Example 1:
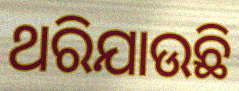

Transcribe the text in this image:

ଥରିଯାଉଛି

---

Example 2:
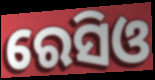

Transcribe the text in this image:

ରେସିଓ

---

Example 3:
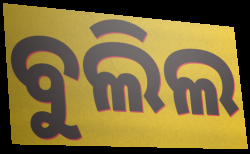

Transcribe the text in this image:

ବୁଲିଲ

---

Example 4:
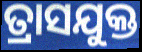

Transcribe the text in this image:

ତ୍ରାସଯୁକ୍ତ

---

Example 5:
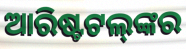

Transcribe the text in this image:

ଆରିଷ୍ଟଟଲ୍‌ଙ୍କର